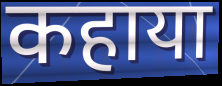
कहाया